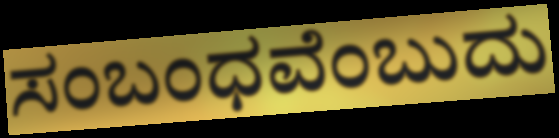
ಸಂಬಂಧವೆಂಬುದು